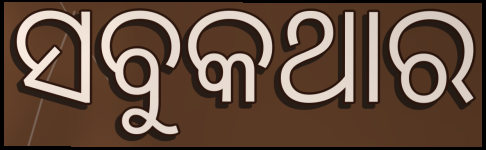
ସବୁକଥାର